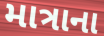
માત્રાના